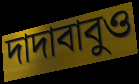
দাদাবাবুও